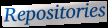
Repositories